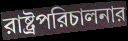
রাষ্ট্রপরিচালনার